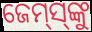
ଜେମ୍‌ସ୍‌ଙ୍କୁ